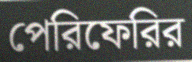
পেরিফেরির